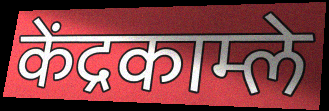
केंद्रकाम्ले